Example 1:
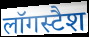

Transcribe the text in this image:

लॉगस्टैश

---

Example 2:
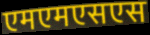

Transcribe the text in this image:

एमएमएसएस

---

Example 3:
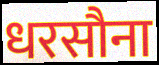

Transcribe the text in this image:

धरसौना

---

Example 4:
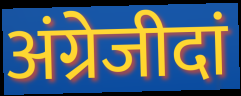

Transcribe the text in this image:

अंग्रेजीदां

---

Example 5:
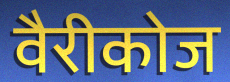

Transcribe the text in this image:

वैरीकोज